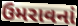
ઉમરાવનાં